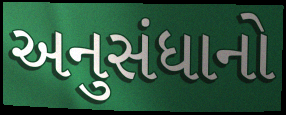
અનુસંધાનો